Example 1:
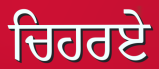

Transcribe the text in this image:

ਚਿਹਰਏ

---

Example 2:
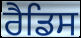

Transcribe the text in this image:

ਰੈਡਿਸ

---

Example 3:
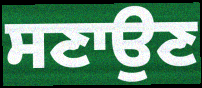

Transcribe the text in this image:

ਸਣਾਉਣ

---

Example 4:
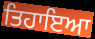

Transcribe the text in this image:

ਤਿਹਾਇਆ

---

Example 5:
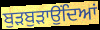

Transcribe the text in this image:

ਬੁੜਬੁੜਾਉਂਦਿਆਂ